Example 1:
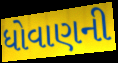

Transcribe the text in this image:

ધોવાણની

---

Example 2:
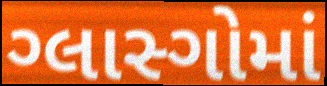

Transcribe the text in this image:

ગ્લાસ્ગોમાં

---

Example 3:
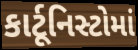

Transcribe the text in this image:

કાર્ટૂનિસ્ટોમાં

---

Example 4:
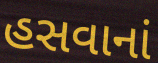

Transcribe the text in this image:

હસવાનાં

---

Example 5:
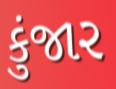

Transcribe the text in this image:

કુંજાર